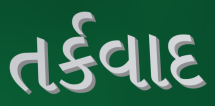
તર્કવાદ